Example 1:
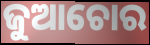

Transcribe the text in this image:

ଜୁଆଚୋର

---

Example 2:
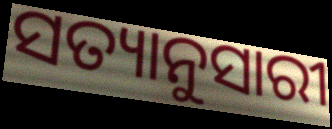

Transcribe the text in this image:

ସତ୍ୟାନୁସାରୀ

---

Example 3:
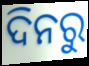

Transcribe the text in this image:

ଦିନରୁ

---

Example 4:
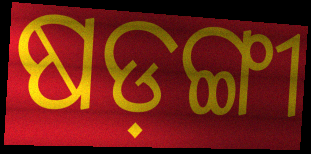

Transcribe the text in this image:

ଷଡ଼ଙ୍ଗୀ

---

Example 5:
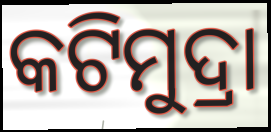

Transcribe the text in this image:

କଟିମୁଦ୍ରା